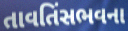
તાવતિંસભવના